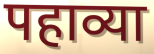
पहाव्या